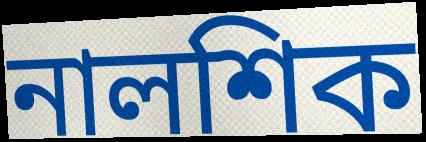
নালশিক